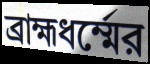
ব্রাহ্মধর্ম্মের